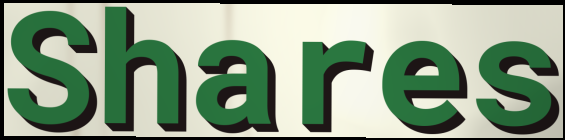
Shares